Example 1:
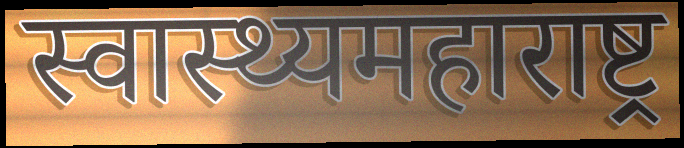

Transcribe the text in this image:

स्वास्थ्यमहाराष्ट्र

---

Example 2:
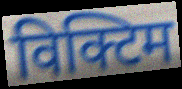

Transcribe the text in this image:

विक्टिम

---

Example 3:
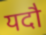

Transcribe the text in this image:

यदौ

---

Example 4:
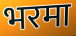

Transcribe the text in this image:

भरमा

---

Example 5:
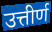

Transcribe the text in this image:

उत्तीर्ण